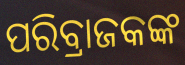
ପରିବ୍ରାଜକଙ୍କ